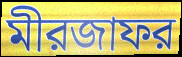
মীরজাফর